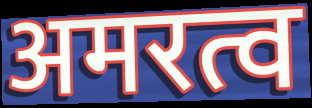
अमरत्व